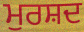
ਮੁਰਸ਼ਦ